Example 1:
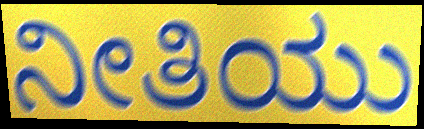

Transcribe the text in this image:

ನೀತಿಯು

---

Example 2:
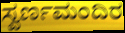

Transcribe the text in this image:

ಸ್ವರ್ಣಮಂದಿರ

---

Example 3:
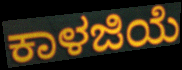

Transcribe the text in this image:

ಕಾಳಜಿಯೆ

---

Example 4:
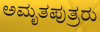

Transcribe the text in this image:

ಅಮೃತಪುತ್ರರು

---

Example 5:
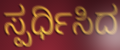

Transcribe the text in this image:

ಸ್ಪರ್ಧಿಸಿದ